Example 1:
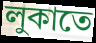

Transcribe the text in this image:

লুকাতে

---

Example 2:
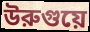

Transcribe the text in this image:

উরুগুয়ে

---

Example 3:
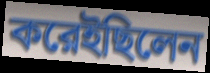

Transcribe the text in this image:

করেইছিলেন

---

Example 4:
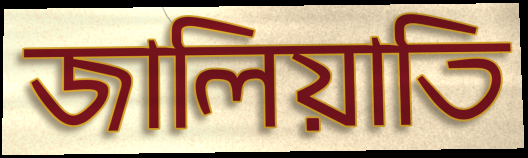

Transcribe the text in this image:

জালিয়াতি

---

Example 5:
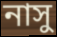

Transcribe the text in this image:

নাসু